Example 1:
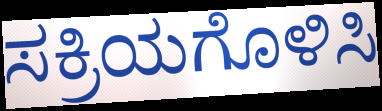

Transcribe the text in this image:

ಸಕ್ರಿಯಗೊಳಿಸಿ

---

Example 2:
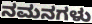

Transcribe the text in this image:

ನಮನಗಳು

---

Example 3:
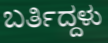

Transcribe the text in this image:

ಬರ್ತಿದ್ದಳು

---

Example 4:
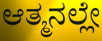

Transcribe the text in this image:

ಆತ್ಮನಲ್ಲೇ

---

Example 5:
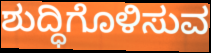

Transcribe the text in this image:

ಶುದ್ಧಿಗೊಳಿಸುವ